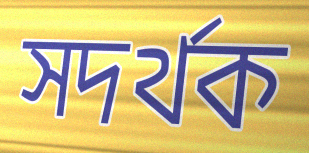
সদর্থক